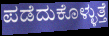
ಪಡೆದುಕೊಳ್ಳುತ್ತೆ